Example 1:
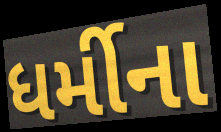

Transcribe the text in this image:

ધર્મીના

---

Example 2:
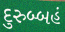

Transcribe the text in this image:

દુરુબ્બહં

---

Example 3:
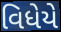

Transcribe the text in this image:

વિધેયે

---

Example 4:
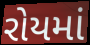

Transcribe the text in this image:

રોયમાં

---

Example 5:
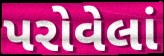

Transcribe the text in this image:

પરોવેલાં